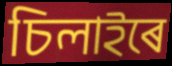
চিলাইৰে